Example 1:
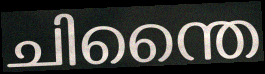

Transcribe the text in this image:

ചിന്തൈ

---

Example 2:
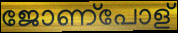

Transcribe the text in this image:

ജോണ്പോള്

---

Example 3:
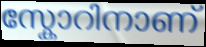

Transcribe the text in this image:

സ്കോറിനാണ്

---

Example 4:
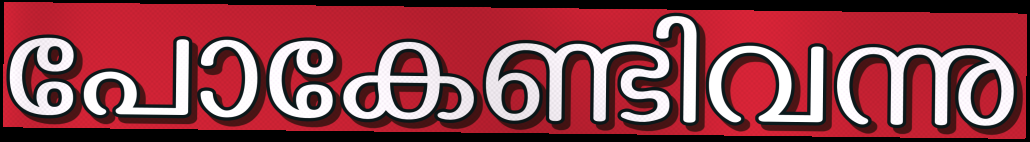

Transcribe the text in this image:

പോകേണ്ടിവന്നു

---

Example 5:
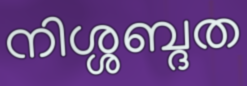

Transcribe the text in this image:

നിശ്ശബ്ദത